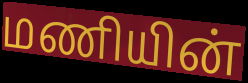
மணியின்